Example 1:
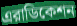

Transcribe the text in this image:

এরাডিকেশন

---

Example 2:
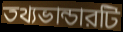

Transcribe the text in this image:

তথ্যভান্ডারটি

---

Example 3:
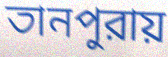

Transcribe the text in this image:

তানপুরায়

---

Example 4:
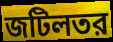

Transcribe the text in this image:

জটিলতর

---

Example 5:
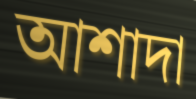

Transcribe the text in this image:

আশাদা